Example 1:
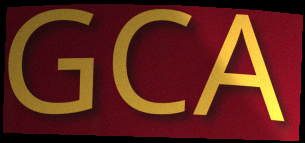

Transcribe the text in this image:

GCA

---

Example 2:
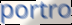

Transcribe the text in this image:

portro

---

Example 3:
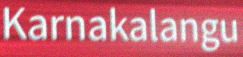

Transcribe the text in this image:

Karnakalangu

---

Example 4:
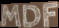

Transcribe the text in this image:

MDF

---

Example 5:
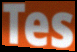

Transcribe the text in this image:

Tes